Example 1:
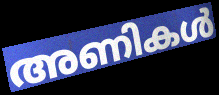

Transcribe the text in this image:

അണികൾ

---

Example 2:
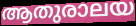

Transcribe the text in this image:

ആതുരാലയ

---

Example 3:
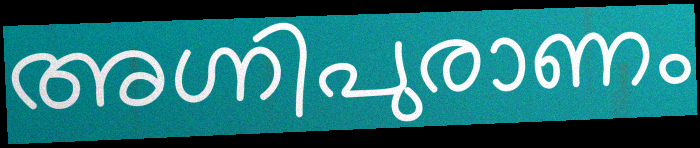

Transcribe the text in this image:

അഗ്നിപുരാണം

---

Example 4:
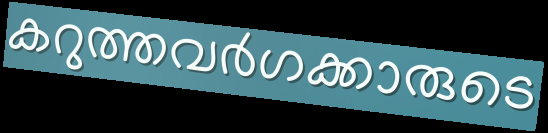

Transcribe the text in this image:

കറുത്തവർഗക്കാരുടെ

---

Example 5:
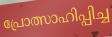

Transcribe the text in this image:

പ്രോത്സാഹിപ്പിച്ച